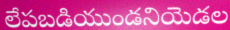
లేపబడియుండనియెడల